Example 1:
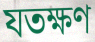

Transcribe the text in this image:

যতক্ষণ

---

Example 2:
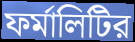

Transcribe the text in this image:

ফর্মালিটির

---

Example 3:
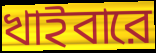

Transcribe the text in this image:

খাইবারে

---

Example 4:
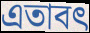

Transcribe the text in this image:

এতাবৎ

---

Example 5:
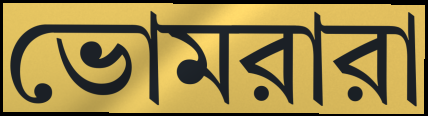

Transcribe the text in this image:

ভোমরারা